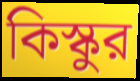
কিস্কুর